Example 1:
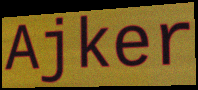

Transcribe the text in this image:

Ajker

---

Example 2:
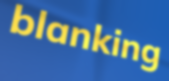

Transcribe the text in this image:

blanking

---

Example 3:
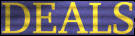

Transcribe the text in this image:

DEALS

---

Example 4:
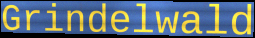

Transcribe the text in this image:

Grindelwald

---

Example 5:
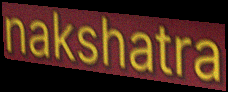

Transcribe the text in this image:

nakshatra